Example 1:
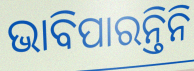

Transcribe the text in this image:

ଭାବିପାରନ୍ତିନି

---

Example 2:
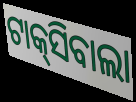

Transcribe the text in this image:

ଟାକ୍‌ସିବାଲା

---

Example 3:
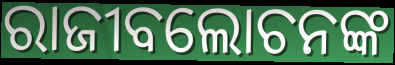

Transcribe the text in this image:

ରାଜୀବଲୋଚନଙ୍କ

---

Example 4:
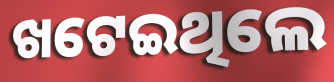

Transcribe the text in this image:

ଖଟେଇଥିଲେ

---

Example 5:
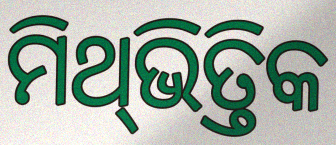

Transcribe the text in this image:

ମିଥ୍‍ଭିତ୍ତିକ